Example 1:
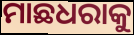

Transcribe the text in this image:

ମାଛଧରାକୁ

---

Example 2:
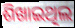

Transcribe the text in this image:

ଶିଖାଇଥିଲ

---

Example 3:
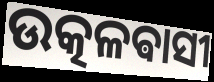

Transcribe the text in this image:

ଉତ୍କଳଵାସୀ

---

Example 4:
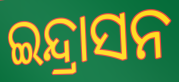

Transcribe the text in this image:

ଇନ୍ଦ୍ରାସନ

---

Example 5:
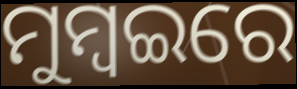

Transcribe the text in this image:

ମୁମ୍ବଇରେ